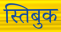
स्तिबुक